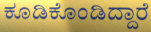
ಕೂಡಿಕೊಂಡಿದ್ದಾರೆ